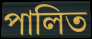
পালিত